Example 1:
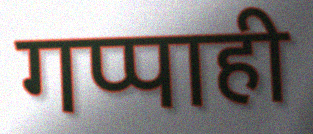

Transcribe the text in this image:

गप्पाही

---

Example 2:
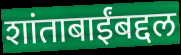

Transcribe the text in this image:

शांताबाईंबद्दल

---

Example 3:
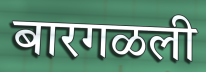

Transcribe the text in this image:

बारगळली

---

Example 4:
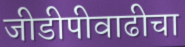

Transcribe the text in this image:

जीडीपीवाढीचा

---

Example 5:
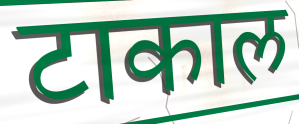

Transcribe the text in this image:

टाकाल